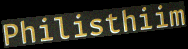
Philisthiim